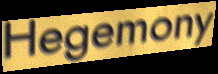
Hegemony